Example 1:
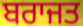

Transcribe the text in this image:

ਬਰਾਜਤ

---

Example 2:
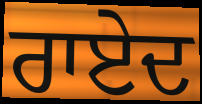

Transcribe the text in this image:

ਰਾਏਦ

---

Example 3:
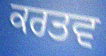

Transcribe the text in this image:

ਕਰਤਵ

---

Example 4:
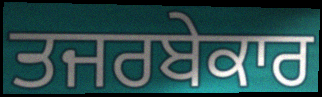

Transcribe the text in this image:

ਤਜਰਬੇਕਾਰ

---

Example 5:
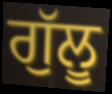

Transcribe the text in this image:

ਗੁੱਲੂ